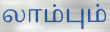
லாம்பும்